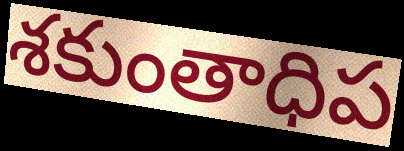
శకుంతాధిప